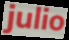
julio